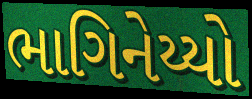
ભાગિનેય્યો